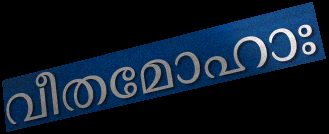
വീതമോഹാഃ